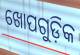
ଖୋପଗୁଡ଼ିକ